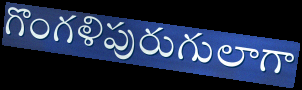
గొంగళిపురుగులాగా